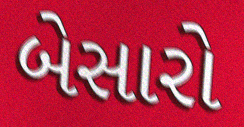
બેસારો